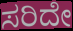
ಸರಿದೇ